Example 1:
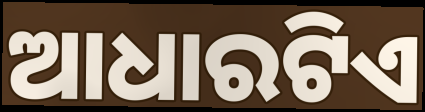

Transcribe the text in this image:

ଆଧାରଟିଏ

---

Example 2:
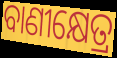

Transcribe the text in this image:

ବାଣୀକ୍ଷେତ୍ର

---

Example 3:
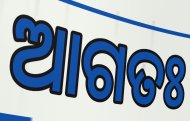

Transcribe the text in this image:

ଆଗତଃ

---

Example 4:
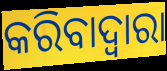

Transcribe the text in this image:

କରିବାଦ୍ବାରା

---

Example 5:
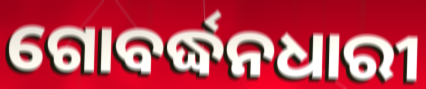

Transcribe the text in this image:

ଗୋବର୍ଦ୍ଧନଧାରୀ